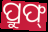
ପ୍ରୁଫ୍